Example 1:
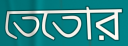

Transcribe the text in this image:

তেতোর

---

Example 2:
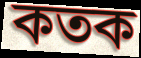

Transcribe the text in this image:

কতক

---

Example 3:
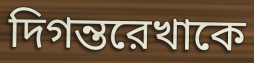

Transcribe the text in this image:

দিগন্তরেখাকে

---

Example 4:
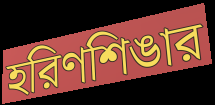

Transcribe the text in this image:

হরিণশিঙার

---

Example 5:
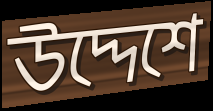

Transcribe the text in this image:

উদ্দেশে